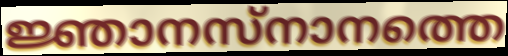
ജ്ഞാനസ്നാനത്തെ